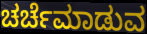
ಚರ್ಚೆಮಾಡುವ